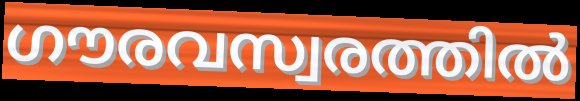
ഗൗരവസ്വരത്തിൽ